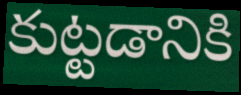
కుట్టడానికి